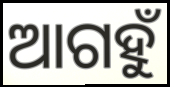
ଆଗହୁଁ